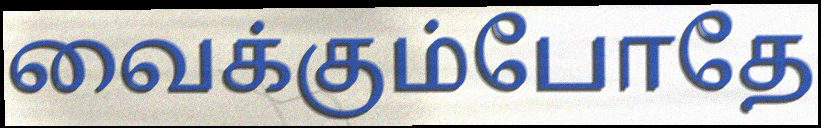
வைக்கும்போதே